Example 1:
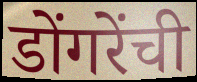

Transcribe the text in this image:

डोंगरेंची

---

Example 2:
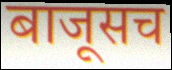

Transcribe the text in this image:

बाजूसच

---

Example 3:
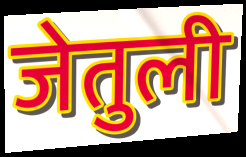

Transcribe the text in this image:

जेतुली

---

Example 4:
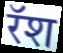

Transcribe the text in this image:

रॅश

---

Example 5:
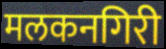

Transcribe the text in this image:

मलकनगिरी